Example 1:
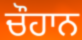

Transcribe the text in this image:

ਚੌਹਾਨ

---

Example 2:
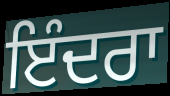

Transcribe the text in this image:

ਇੰਦਰਾ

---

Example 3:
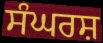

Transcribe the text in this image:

ਸੰਘਰਸ਼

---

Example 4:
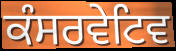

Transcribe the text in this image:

ਕੰਸਰਵੇਟਿਵ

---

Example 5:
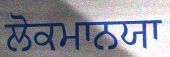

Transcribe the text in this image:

ਲੋਕਮਾਨਯਾ